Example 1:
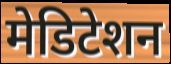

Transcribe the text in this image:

मेडिटेशन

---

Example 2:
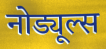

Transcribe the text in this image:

नोड्यूल्स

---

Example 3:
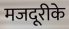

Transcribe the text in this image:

मजदूरीके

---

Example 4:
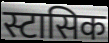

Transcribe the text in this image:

स्टासिक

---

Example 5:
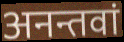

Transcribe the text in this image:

अनन्तवां